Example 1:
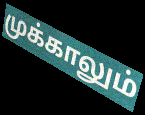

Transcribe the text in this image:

முக்காலும்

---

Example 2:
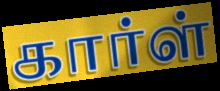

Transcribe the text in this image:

கார்ள்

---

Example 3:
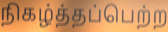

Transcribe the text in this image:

நிகழ்த்தப்பெற்ற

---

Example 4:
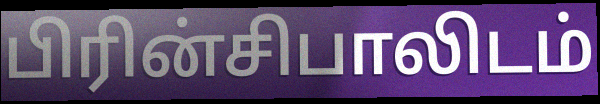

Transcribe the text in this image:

பிரின்சிபாலிடம்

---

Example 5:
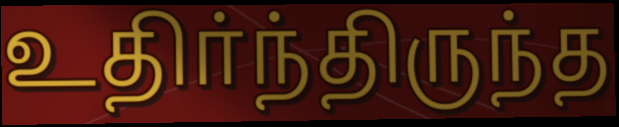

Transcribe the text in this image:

உதிர்ந்திருந்த